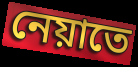
নেয়াতে